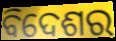
ବିଦେଶର